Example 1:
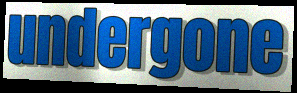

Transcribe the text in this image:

undergone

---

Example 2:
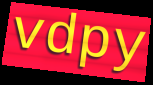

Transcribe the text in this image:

vdpy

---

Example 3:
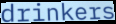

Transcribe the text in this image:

drinkers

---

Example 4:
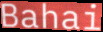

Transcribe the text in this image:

Bahai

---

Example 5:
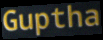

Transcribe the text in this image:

Guptha